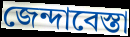
জেন্দাবেস্তা